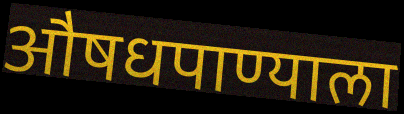
औषधपाण्याला